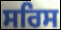
ਸਰਿਸ